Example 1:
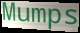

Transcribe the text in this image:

Mumps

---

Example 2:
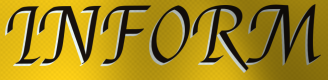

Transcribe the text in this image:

INFORM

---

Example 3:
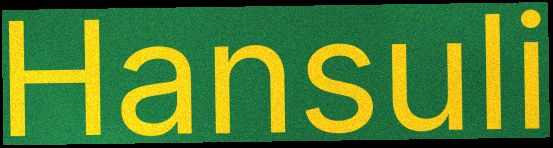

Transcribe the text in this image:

Hansuli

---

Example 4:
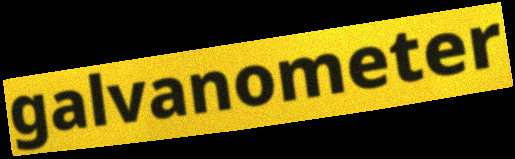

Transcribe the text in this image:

galvanometer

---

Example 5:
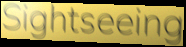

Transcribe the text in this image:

Sightseeing